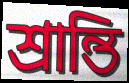
শ্রান্তি